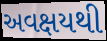
અવક્ષયથી